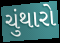
ચુંથારો